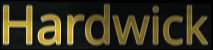
Hardwick